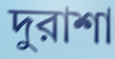
দুরাশা